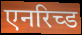
एनरिच्ड